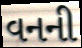
વનની